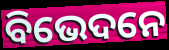
ବିଭେଦନେ